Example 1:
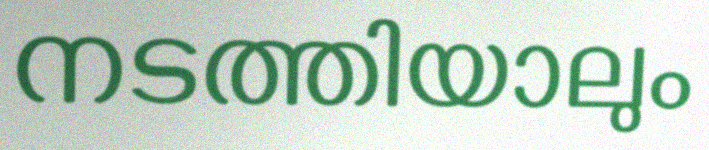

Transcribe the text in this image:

നടത്തിയാലും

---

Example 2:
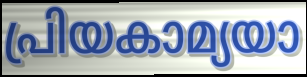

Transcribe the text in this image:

പ്രിയകാമ്യയാ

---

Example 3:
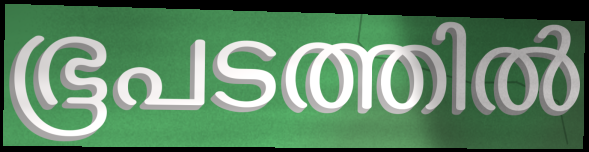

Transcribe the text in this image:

ഭൂപടത്തിൽ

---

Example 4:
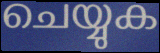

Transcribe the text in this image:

ചെയ്യുക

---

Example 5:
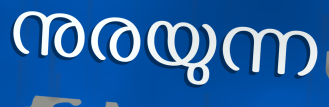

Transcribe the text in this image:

നുരയുന്ന